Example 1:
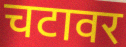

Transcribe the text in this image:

चटावर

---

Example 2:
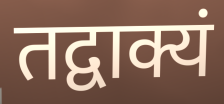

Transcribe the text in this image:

तद्वाक्यं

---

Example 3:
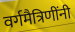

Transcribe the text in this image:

वर्गमैत्रिणींनी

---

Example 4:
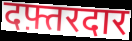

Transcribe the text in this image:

दफ़्तरदार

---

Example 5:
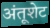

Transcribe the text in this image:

अंतूशेट